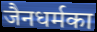
जैनधर्मका